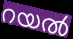
റയൽ